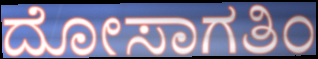
ದೋಸಾಗತಿಂ